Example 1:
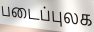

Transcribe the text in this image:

படைப்புலக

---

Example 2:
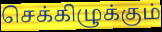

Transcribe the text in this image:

செக்கிழுக்கும்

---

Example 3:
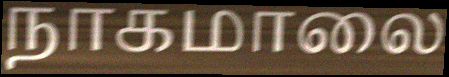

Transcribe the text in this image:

நாகமாலை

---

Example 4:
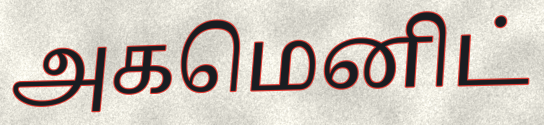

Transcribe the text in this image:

அகமெனிட்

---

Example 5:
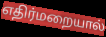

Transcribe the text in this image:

எதிர்மறையால்